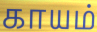
காயம்